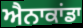
ਐਨਾਕਾਂਡਾ